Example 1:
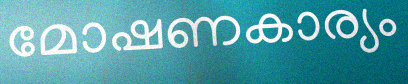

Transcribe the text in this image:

മോഷണകാര്യം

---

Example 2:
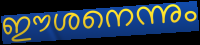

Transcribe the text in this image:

ഈശനെന്നും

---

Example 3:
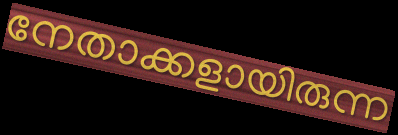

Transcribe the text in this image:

നേതാക്കളായിരുന്ന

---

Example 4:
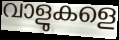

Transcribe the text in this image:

വാളുകളെ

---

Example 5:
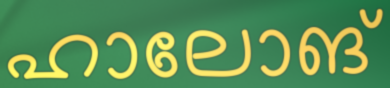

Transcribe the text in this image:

ഹാലോങ്